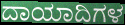
ದಾಯಾದಿಗಳ